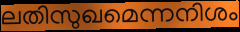
ലതിസുഖമെന്നനിശം